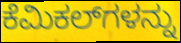
ಕೆಮಿಕಲ್‌ಗಳನ್ನು